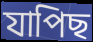
যাপিছ